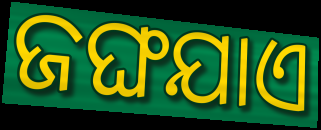
ଜଙ୍ଘଯାଏ